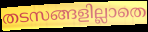
തടസങ്ങളില്ലാതെ